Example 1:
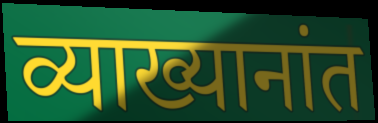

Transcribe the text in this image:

व्याख्यानांत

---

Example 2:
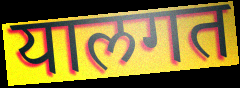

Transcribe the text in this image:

यालगत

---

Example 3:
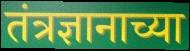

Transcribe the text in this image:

तंत्रज्ञानाच्या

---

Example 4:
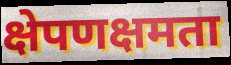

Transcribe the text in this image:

क्षेपणक्षमता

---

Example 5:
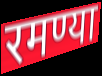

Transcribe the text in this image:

रमण्या